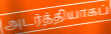
அடர்த்தியாகப்